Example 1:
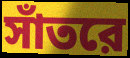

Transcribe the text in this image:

সাঁতরে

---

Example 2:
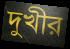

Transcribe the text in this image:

দুখীর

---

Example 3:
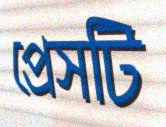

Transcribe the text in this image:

প্রেসটি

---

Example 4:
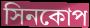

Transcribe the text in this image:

সিনকোপ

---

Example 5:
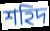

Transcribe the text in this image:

শহিদ